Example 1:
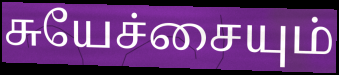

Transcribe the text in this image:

சுயேச்சையும்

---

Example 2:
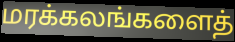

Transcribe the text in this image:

மரக்கலங்களைத்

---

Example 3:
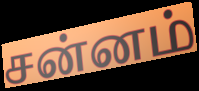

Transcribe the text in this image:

சன்னம்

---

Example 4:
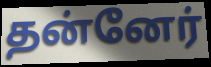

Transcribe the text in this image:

தன்னேர்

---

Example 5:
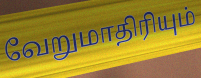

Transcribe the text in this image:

வேறுமாதிரியும்